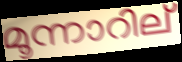
മൂന്നാറില്